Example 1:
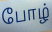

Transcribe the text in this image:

போழ்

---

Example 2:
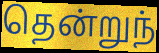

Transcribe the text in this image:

தென்றுந்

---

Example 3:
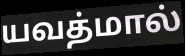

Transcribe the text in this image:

யவத்மால்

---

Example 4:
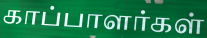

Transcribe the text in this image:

காப்பாளர்கள்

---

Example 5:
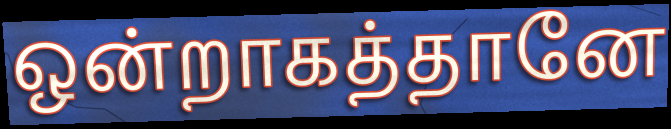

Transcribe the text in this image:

ஒன்றாகத்தானே